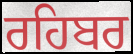
ਰਹਿਬਰ